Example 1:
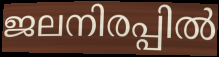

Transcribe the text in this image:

ജലനിരപ്പിൽ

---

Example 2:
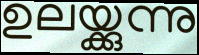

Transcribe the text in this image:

ഉലയ്ക്കുന്നു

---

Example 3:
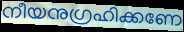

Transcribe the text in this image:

നീയനുഗ്രഹിക്കണേ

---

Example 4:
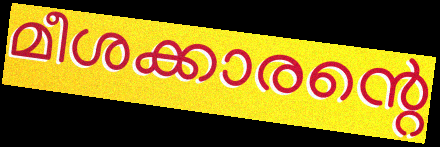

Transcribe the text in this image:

മീശക്കാരന്റെ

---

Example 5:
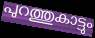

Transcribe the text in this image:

പുറത്തുകാട്ടും